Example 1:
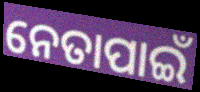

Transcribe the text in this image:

ନେତାପାଇଁ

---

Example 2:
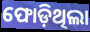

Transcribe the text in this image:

ଫୋଡ଼ିଥିଲା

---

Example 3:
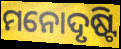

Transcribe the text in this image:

ମନୋଦୃଷ୍ଟି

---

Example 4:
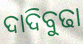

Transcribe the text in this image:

ଦାଦିବୁଢା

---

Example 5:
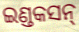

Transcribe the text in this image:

ଇଣ୍ଡକସନ୍